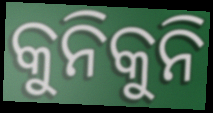
କୁନିକୁନି